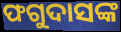
ଫଗୁଦାସଙ୍କ